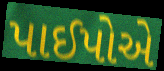
પાઈપોએ